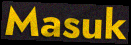
Masuk